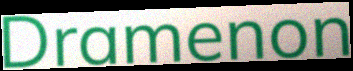
Dramenon